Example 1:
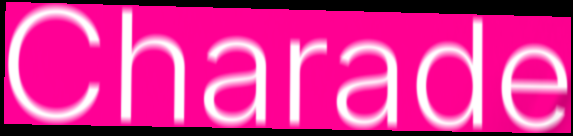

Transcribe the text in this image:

Charade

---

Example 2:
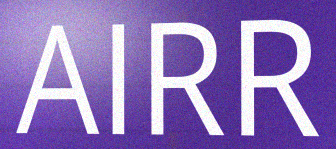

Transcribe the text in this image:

AIRR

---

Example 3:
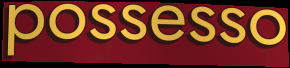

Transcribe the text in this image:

possesso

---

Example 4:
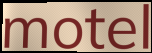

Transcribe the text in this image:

motel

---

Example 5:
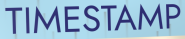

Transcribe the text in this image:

TIMESTAMP